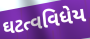
ઘટત્વવિધેય